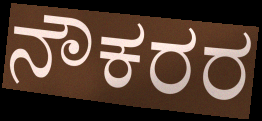
ನೌಕರರ